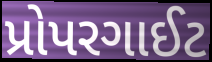
પ્રોપરગાઈટ